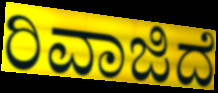
ರಿವಾಜಿದೆ